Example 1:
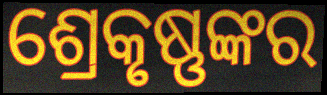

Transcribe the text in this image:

ଶ୍ରେକୃଷ୍ଣଙ୍କର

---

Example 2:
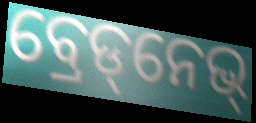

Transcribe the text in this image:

ବ୍ରେଡ୍‌ନେଭ୍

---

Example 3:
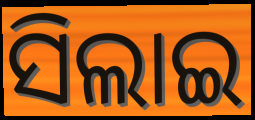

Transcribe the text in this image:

ସିଲାଇ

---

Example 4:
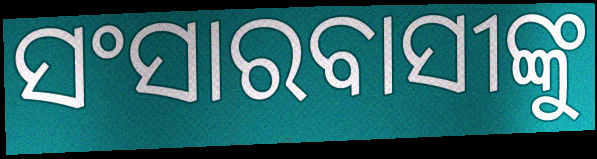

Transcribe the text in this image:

ସଂସାରବାସୀଙ୍କୁ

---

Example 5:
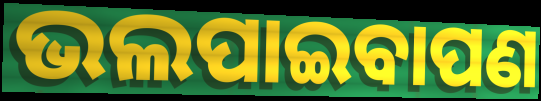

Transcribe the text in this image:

ଭଲପାଇବାପଣ